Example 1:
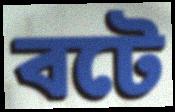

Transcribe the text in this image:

বটে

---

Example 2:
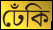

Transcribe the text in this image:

ঢেঁকি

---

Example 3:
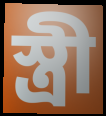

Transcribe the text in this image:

স্ত্ৰী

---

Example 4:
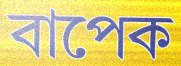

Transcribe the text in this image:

বাপেক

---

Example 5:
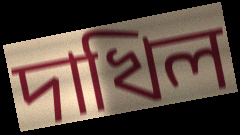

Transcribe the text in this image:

দাখিল